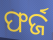
ଫର୍ଜ